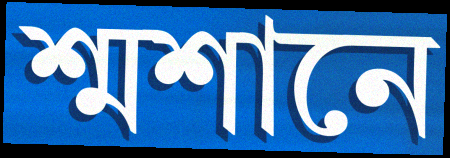
শ্মশানে